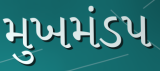
મુખમંડપ